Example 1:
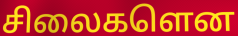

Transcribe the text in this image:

சிலைகளென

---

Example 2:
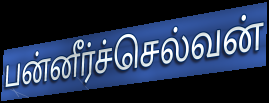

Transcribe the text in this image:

பன்னீர்ச்செல்வன்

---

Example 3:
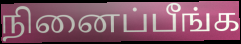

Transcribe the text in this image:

நினைப்பீங்க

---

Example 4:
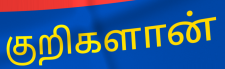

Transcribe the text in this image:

குறிகளான்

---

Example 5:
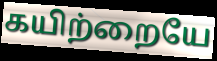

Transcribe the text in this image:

கயிற்றையே